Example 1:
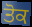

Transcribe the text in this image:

ਤੋਕ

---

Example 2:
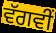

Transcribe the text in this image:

ਵੱਗਵੀਂ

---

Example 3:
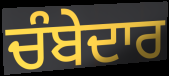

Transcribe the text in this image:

ਚੰਬੇਦਾਰ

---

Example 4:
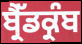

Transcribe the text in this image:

ਬ੍ਰੈੱਡਕ੍ਰੰਬ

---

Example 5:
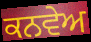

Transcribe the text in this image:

ਕਨਵੇਅ